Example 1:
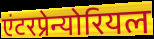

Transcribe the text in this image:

एंटरप्रेन्योरियल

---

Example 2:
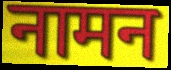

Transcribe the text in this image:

नामन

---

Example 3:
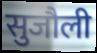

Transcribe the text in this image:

सुजौली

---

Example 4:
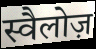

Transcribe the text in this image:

स्वैलोज़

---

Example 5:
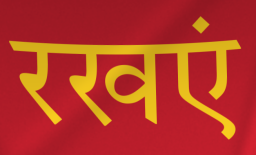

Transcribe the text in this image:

रखएं